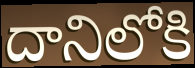
దానిలోకి